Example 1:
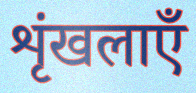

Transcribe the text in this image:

शृंखलाएँ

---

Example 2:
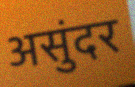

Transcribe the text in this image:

असुंदर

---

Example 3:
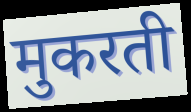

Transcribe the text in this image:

मुकरती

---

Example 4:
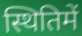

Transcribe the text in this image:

स्थितिमें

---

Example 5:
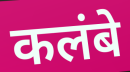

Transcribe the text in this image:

कलंबे